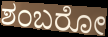
ಶಂಬರೋ